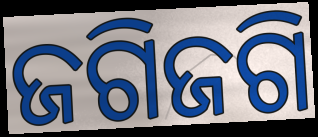
ଜଗିଜଗି